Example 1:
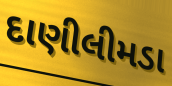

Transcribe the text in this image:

દાણીલીમડા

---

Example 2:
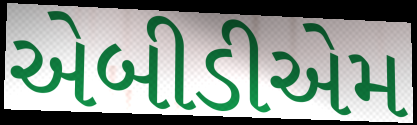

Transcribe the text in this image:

એબીડીએમ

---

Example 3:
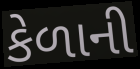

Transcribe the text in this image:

કેળાની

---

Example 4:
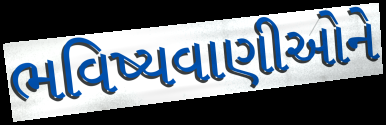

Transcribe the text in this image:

ભવિષ્યવાણીઓને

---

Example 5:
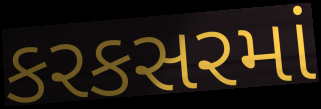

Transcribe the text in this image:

કરકસરમાં